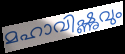
മഹാവിഷ്ണുവും